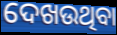
ଦେଖଉଥିବା